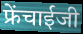
फ्रेंचाईजी